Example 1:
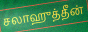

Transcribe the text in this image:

சலாஹுத்தீன்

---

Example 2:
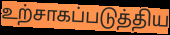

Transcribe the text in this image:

உற்சாகப்படுத்திய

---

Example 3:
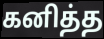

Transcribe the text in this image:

கனித்த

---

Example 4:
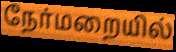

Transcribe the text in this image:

நேர்மறையில்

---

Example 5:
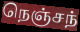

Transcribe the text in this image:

நெஞ்சந்